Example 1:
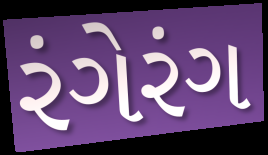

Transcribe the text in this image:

રંગેરંગ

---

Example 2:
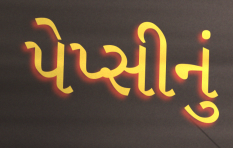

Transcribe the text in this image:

પેપ્સીનું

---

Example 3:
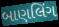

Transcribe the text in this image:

બાણલિંગ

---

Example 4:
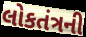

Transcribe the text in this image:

લોકતંત્રની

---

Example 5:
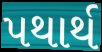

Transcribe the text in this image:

પથાર્થ